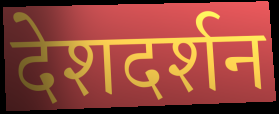
देशदर्शन